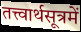
तत्त्वार्थसूत्रमें